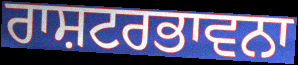
ਰਾਸ਼ਟਰਭਾਵਨਾ